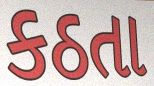
કઠતા